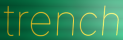
trench